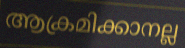
ആക്രമിക്കാനല്ല